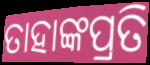
ତାହାଙ୍କପ୍ରତି